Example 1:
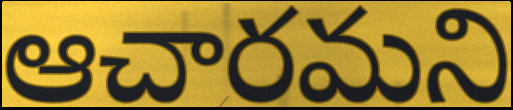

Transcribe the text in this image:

ఆచారమని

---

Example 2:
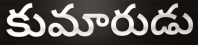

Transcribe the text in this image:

కుమారుడు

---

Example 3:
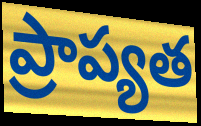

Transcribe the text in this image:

ప్రాప్యత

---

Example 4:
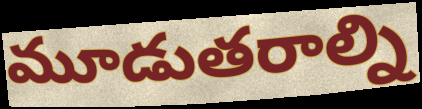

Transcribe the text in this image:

మూడుతరాల్ని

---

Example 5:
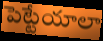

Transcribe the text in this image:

పెట్టేయాలా